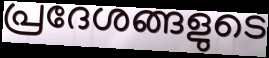
പ്രദേശങ്ങളുടെ